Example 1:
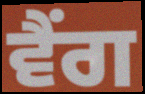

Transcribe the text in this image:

ਵੈਂਗ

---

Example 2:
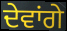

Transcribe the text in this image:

ਦੇਵਾਂਗੇ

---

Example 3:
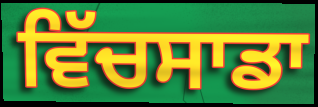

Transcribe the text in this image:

ਵਿੱਚਸਾਡਾ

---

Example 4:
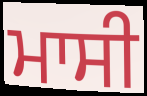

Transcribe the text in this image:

ਮਾਸੀ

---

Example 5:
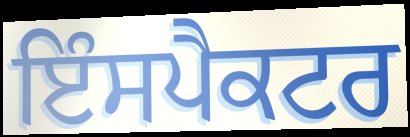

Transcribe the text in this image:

ਇੰਸਪੈਕਟਰ